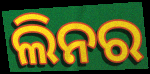
ଲିନର